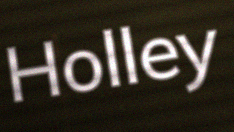
Holley